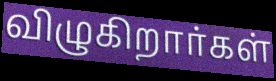
விழுகிறார்கள்